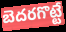
బెదరగొట్టే